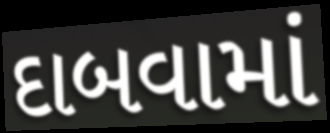
દાબવામાં